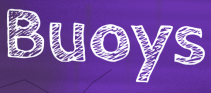
Buoys